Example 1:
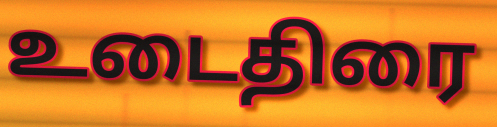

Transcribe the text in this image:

உடைதிரை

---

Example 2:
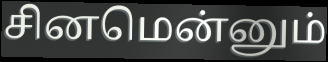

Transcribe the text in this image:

சினமென்னும்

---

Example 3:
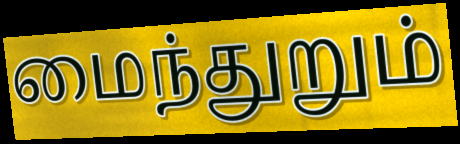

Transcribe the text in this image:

மைந்துறும்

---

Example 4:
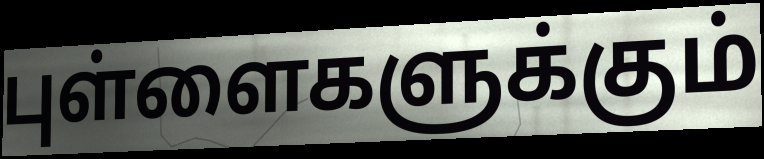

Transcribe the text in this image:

புள்ளைகளுக்கும்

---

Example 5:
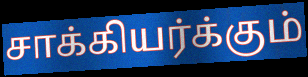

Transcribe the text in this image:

சாக்கியர்க்கும்